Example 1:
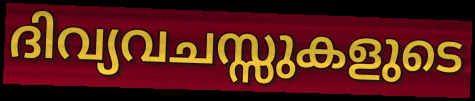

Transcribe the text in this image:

ദിവ്യവചസ്സുകളുടെ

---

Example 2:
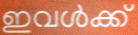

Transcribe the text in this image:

ഇവൾക്ക്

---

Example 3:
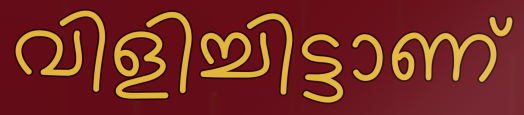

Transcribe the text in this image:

വിളിച്ചിട്ടാണ്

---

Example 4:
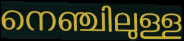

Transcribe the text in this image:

നെഞ്ചിലുള്ള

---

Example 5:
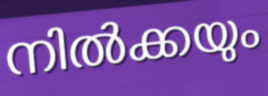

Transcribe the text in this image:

നിൽക്കയും